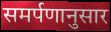
समर्पणानुसार